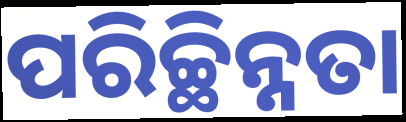
ପରିଚ୍ଛିନ୍ନତା